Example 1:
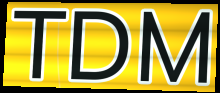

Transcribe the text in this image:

TDM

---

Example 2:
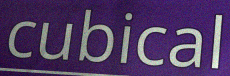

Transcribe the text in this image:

cubical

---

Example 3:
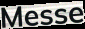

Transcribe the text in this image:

Messe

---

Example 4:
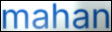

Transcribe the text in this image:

mahan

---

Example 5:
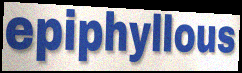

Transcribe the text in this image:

epiphyllous